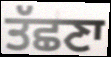
ਤੱਛਣਾ